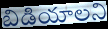
బిడియాలని